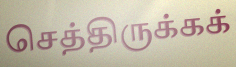
செத்திருக்கக்